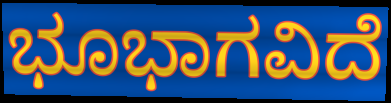
ಭೂಭಾಗವಿದೆ